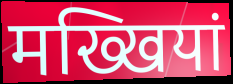
मख्खियां